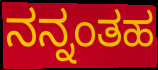
ನನ್ನಂತಹ